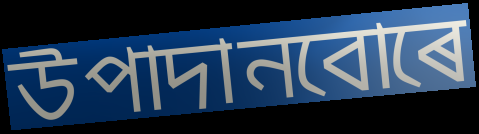
উপাদানবোৰে